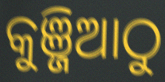
କୁଞ୍ଜିଆଠୁ